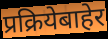
प्रक्रियेबाहेर